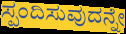
ಸ್ಪಂದಿಸುವುದನ್ನೇ